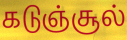
கடுஞ்சூல்